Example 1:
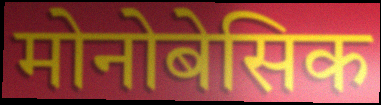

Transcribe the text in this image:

मोनोबेसिक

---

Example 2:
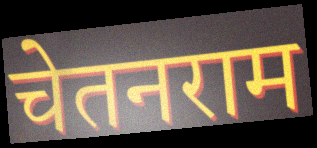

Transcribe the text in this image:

चेतनराम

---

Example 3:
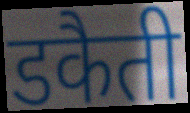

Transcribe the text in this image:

डकैती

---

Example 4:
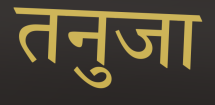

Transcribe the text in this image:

तनुजा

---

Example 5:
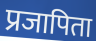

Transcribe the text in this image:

प्रजापिता